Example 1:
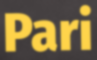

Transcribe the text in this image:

Pari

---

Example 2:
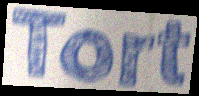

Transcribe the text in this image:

Tort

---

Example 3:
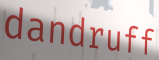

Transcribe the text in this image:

dandruff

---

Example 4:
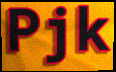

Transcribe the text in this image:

Pjk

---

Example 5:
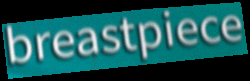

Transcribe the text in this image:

breastpiece